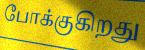
போக்குகிறது